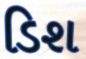
ડિશ